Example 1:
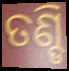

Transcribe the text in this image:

ତଣ୍ଡି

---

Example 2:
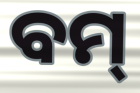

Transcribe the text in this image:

ବମ୍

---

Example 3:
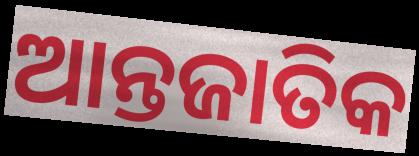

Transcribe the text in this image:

ଆନ୍ତଜାତିକ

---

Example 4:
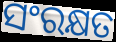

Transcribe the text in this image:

ସଂରକ୍ଷତ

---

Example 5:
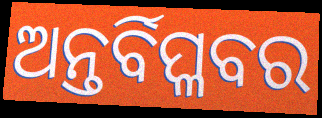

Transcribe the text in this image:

ଅନ୍ତର୍ବିପ୍ଳବର